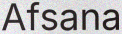
Afsana